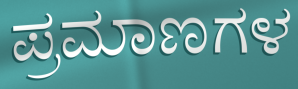
ಪ್ರಮಾಣಗಳ